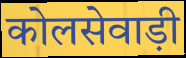
कोलसेवाड़ी